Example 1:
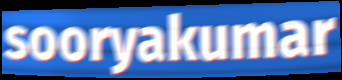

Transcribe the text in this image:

sooryakumar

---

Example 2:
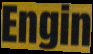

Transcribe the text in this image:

Engin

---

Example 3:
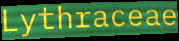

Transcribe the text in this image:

Lythraceae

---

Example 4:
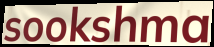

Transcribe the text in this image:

sookshma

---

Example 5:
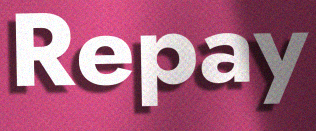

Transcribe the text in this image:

Repay